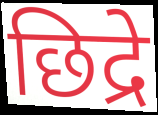
छिद्रे